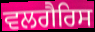
ਵਲਗੈਰਿਸ